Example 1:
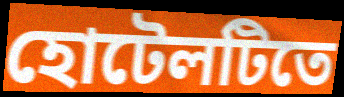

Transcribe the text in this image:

হোটেলটিতে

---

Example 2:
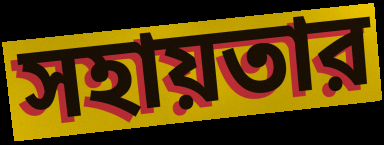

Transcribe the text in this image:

সহায়তার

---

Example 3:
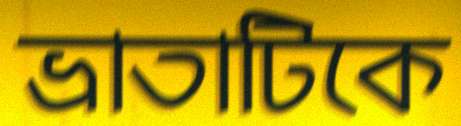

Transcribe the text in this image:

ভ্রাতাটিকে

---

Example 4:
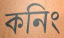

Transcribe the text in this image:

কনিং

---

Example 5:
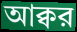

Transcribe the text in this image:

আক্বর